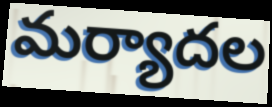
మర్యాదల